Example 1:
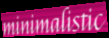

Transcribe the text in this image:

minimalistic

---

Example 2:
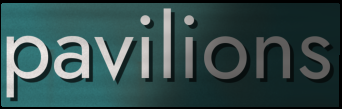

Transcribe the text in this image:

pavilions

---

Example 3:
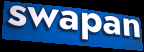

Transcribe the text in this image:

swapan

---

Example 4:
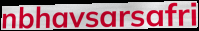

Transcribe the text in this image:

nbhavsarsafri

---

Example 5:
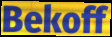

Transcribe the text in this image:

Bekoff